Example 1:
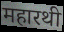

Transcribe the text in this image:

महारथी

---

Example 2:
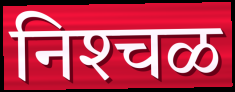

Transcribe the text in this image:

निश्‍चळ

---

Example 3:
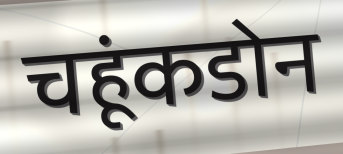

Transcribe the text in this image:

चहूंकडोन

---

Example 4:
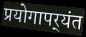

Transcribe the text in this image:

प्रयोगापर्यंत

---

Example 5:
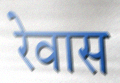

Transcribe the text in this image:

रेवास